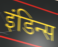
इंडिन्स